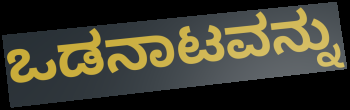
ಒಡನಾಟವನ್ನು